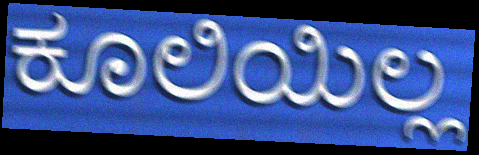
ಕೂಲಿಯಿಲ್ಲ